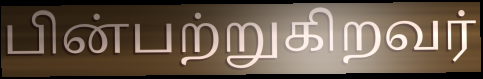
பின்பற்றுகிறவர்